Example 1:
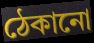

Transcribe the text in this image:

ঠেকানো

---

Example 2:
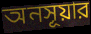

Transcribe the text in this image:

অনসূয়ার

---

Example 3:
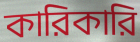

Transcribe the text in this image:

কারিকারি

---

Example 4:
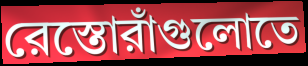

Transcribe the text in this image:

রেস্তোরাঁগুলোতে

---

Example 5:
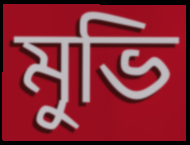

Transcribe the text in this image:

মুভি